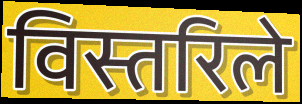
विस्तरिले